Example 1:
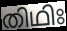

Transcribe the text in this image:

തിഥിഃ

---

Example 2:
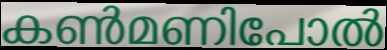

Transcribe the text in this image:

കൺമണിപോൽ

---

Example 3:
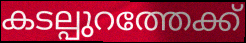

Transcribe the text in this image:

കടല്പുറത്തേക്ക്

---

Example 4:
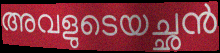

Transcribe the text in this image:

അവളുടെയച്ഛൻ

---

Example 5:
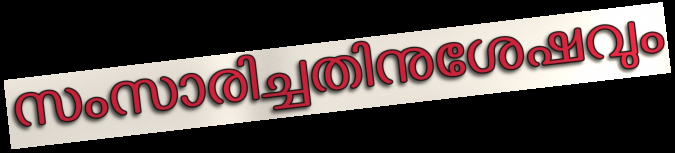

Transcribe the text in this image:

സംസാരിച്ചതിനുശേഷവും